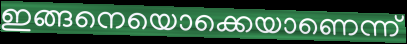
ഇങ്ങനെയൊക്കെയാണെന്ന്